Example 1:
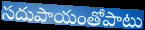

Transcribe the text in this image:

సదుపాయంతోపాటు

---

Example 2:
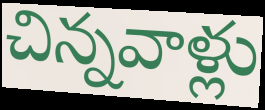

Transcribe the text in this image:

చిన్నవాళ్లు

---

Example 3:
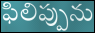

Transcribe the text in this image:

ఫిలిప్పును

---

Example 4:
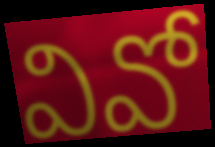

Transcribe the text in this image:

వివో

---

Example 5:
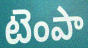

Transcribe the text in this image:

టెంపా